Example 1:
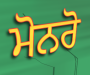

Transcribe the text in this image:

ਮੋਨਰੋ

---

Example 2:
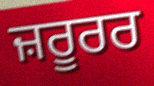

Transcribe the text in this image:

ਜ਼ਰੂਰਰ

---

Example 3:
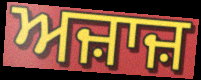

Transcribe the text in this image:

ਅਜ਼ਾਜ਼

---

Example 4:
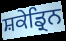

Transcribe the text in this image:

ਸ਼ਕੇਡ੍ਰਿਨ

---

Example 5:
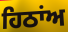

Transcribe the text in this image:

ਹਿਠਾਂਅ